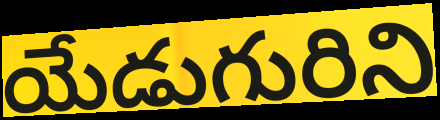
యేడుగురిని